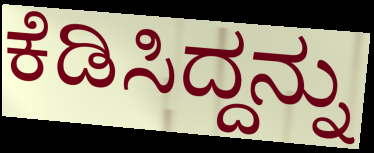
ಕೆಡಿಸಿದ್ದನ್ನು